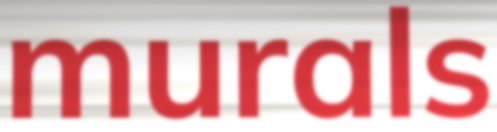
murals